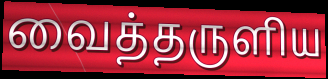
வைத்தருளிய